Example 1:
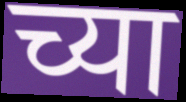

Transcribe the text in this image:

च्या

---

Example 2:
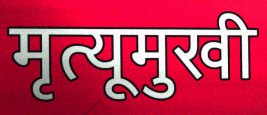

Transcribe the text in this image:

मृत्यूमुखी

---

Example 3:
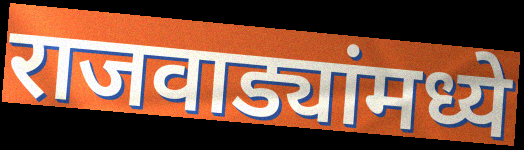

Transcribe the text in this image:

राजवाड्यांमध्ये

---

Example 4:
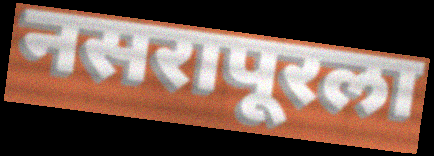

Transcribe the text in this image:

नसरापूरला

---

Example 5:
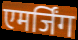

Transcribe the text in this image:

एमर्जिंग